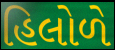
હિલોળે